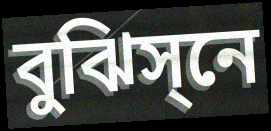
বুঝিস্‌নে